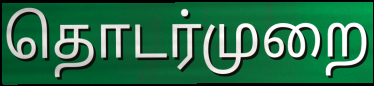
தொடர்முறை